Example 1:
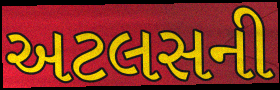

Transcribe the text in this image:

અટલસની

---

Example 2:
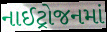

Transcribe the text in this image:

નાઈટ્રોજનમાં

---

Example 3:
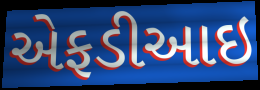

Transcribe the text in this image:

એફડીઆઇ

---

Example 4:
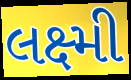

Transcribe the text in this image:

લક્ષ્મી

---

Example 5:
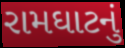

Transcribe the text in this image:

રામઘાટનું